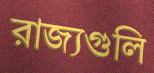
রাজ্যগুলি